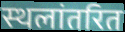
स्थलांतरित